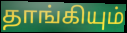
தாங்கியும்